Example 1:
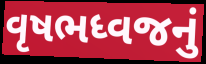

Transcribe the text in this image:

વૃષભધ્વજનું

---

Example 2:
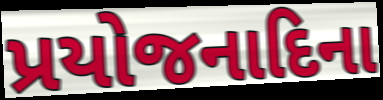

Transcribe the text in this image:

પ્રયોજનાદિના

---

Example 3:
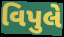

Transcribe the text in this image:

વિપુલે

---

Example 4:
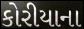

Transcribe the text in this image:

કોરીયાના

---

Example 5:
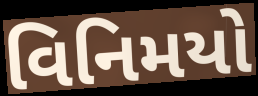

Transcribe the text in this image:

વિનિમયો